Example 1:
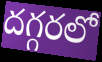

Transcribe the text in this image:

దగ్గరలో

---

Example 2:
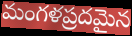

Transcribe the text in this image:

మంగళప్రదమైన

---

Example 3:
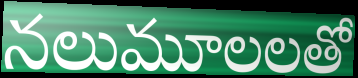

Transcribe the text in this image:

నలుమూలలతో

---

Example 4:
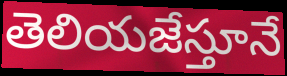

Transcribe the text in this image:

తెలియజేస్తూనే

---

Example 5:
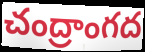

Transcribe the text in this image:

చంద్రాంగద